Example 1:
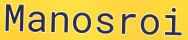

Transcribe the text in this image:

Manosroi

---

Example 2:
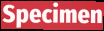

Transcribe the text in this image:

Specimen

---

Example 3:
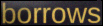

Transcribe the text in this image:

borrows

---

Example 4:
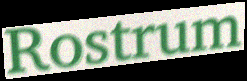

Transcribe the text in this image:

Rostrum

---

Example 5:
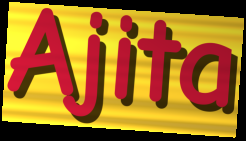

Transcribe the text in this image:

Ajita